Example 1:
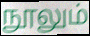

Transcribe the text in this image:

நூலும்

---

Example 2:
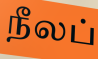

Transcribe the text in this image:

நீலப்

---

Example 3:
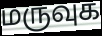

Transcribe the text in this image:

மருவுக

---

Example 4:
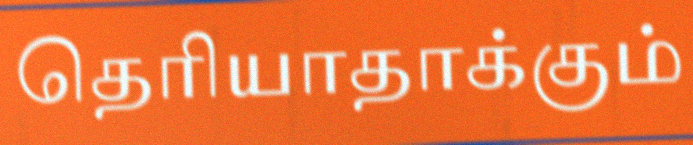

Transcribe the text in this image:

தெரியாதாக்கும்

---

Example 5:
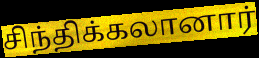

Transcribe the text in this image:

சிந்திக்கலானார்